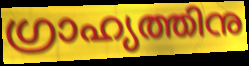
ഗ്രാഹ്യത്തിനു